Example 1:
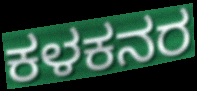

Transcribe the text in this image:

ಕಳಕನರ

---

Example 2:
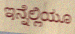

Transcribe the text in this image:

ಇನ್ನೆಲ್ಲಿಯೂ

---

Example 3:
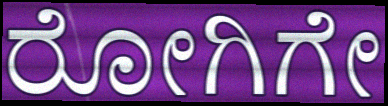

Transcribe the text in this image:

ರೋಗಿಗೇ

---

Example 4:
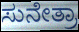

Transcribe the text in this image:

ಸುನೇತ್ರಾ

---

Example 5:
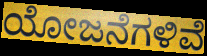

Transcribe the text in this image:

ಯೋಜನೆಗಳಿವೆ